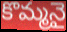
కొమ్మనై